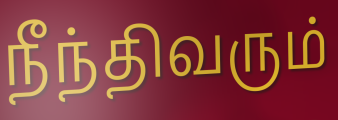
நீந்திவரும்